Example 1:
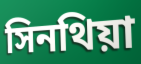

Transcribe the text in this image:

সিনথিয়া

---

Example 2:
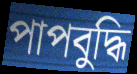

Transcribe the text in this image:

পাপবুদ্ধি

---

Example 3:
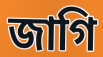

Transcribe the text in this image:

জাগি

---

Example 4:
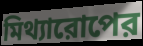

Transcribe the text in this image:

মিথ্যারোপের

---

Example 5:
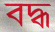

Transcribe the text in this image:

বদ্ধ